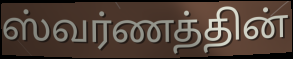
ஸ்வர்ணத்தின்